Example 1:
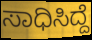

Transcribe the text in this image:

ಸಾಧಿಸಿದ್ದೆ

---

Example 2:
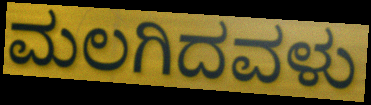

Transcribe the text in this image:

ಮಲಗಿದವಳು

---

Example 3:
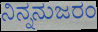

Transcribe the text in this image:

ನಿನ್ನನುಜರಂ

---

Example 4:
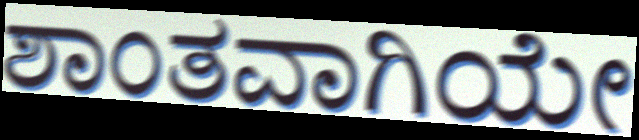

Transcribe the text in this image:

ಶಾಂತವಾಗಿಯೇ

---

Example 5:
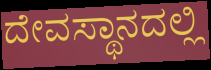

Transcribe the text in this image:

ದೇವಸ್ಥಾನದಲ್ಲಿ